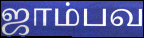
ஜாம்பவ